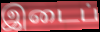
இடைப்